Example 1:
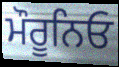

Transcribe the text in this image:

ਮੌਰੂਨਿਓ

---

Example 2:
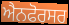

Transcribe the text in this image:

ਐਨਫੋਰਸਰ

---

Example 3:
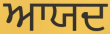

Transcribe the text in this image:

ਆਯਦ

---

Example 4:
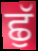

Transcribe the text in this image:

ਛੁੱ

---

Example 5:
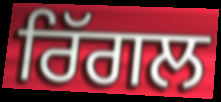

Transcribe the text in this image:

ਰਿੱਗਲ